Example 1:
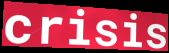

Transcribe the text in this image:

crisis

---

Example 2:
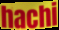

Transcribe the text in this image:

hachi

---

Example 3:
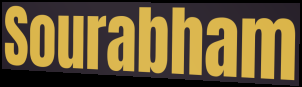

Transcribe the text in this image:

Sourabham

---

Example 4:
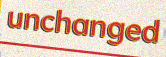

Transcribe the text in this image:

unchanged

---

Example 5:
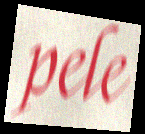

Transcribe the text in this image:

pele